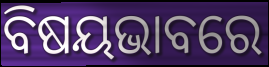
ବିଷୟଭାବରେ